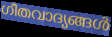
ഗീതവാദ്യങ്ങൾ